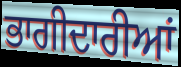
ਭਾਗੀਦਾਰੀਆਂ